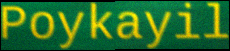
Poykayil